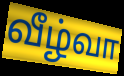
வீழ்வா